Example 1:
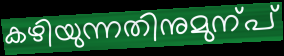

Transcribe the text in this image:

കഴിയുന്നതിനുമുന്പ്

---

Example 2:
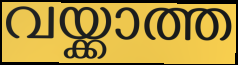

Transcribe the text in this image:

വയ്ക്കാത്ത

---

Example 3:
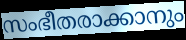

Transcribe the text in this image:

സംഭീതരാക്കാനും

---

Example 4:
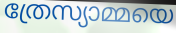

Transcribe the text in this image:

ത്രേസ്യാമ്മയെ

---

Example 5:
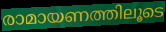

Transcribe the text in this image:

രാമായണത്തിലൂടെ